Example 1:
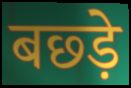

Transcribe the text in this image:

बछ्ड़े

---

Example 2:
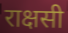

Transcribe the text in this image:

राक्षसी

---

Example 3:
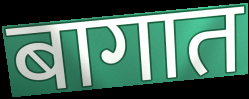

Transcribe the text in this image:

बागात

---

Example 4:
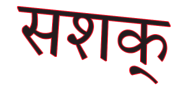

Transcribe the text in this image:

सशक्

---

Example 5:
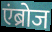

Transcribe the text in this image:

एंब्रोज